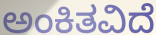
ಅಂಕಿತವಿದೆ